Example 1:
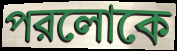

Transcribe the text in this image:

পরলোকে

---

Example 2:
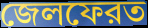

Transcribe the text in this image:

জেলফেরত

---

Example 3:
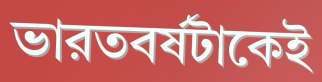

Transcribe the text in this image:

ভারতবর্ষটাকেই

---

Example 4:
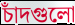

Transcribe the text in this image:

চাঁদগুলো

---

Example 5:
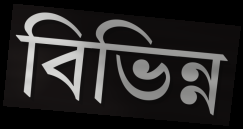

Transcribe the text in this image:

বিভিন্ন